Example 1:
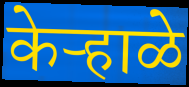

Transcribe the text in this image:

केऱ्हाळे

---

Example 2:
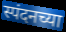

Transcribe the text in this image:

स्पंदनच्या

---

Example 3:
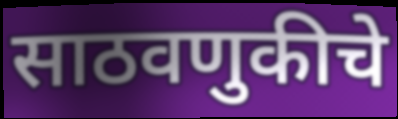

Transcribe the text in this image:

साठवणुकीचे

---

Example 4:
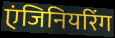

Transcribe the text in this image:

एंजिनियरिंग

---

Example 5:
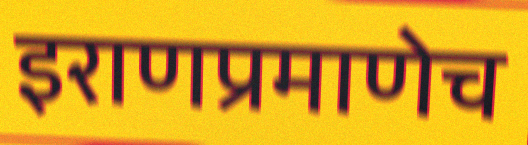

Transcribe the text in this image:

इराणप्रमाणेच